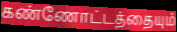
கண்ணோட்டத்தையும்